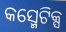
କସ୍ମେଟିକ୍ସ